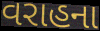
વરાહના